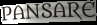
PANSARE